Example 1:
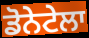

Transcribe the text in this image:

ਡੋਨੇਟੇਲਾ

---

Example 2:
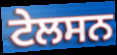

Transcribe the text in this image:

ਟੇਲਸਨ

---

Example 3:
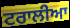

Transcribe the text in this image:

ਟਰਾਲੀਆ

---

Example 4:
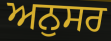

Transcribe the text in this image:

ਅਨੁਸਰ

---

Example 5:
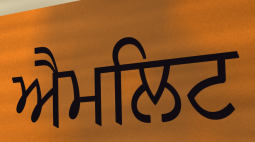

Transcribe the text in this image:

ਐਮਲਿਟ